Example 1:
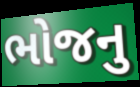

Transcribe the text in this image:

ભોજનુ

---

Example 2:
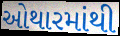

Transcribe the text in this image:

ઓથારમાંથી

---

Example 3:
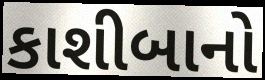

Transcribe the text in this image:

કાશીબાનો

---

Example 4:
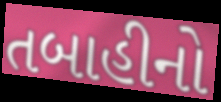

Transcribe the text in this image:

તબાહીનો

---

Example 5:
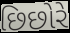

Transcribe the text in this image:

છિછોરે